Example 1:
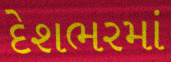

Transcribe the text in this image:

દેશભરમાં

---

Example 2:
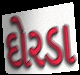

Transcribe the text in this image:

દોરડા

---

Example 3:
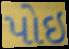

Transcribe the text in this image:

પોઇ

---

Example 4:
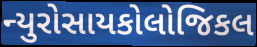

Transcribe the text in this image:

ન્યુરોસાયકોલોજિકલ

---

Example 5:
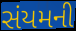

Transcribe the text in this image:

સંયમની